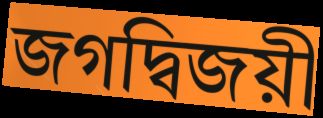
জগদ্বিজয়ী